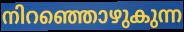
നിറഞ്ഞൊഴുകുന്ന